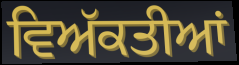
ਵਿਅੱਕਤੀਆਂ